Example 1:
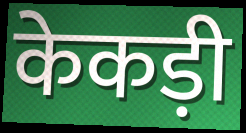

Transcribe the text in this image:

केकड़ी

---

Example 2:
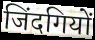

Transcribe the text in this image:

जिंदगियों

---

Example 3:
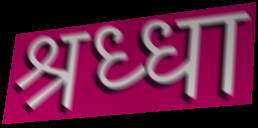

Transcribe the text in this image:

श्रध्धा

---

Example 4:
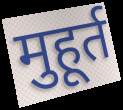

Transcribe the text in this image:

मुहूर्त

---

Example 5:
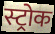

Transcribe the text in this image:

स्‍ट्रोक